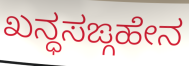
ಖನ್ಧಸಙ್ಗಹೇನ